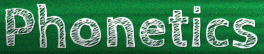
Phonetics